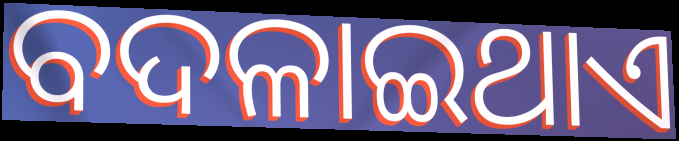
ବଦଳାଇଥାଏ